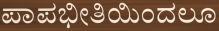
ಪಾಪಭೀತಿಯಿಂದಲೂ